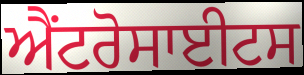
ਐਂਟਰੋਸਾਈਟਸ